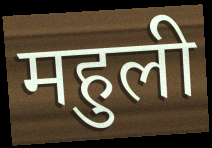
महुली